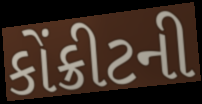
કોંક્રીટની